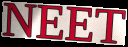
NEET